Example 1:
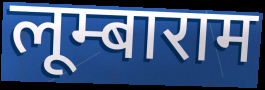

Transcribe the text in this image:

लूम्बाराम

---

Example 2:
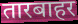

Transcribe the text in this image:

तारबाहर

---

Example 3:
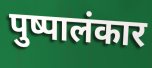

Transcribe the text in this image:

पुष्पालंकार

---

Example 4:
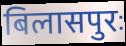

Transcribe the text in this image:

बिलासपुरः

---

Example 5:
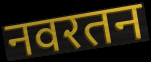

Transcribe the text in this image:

नवरतन